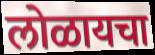
लोळायचा